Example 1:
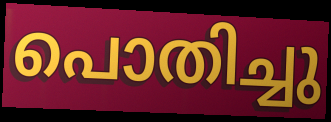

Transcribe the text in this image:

പൊതിച്ചു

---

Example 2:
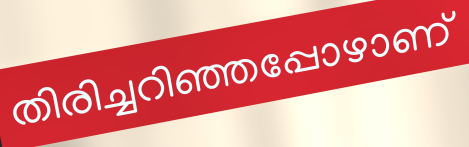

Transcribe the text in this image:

തിരിച്ചറിഞ്ഞപ്പോഴാണ്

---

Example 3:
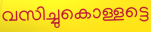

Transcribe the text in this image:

വസിച്ചുകൊള്ളട്ടെ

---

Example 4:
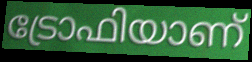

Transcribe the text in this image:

ട്രോഫിയാണ്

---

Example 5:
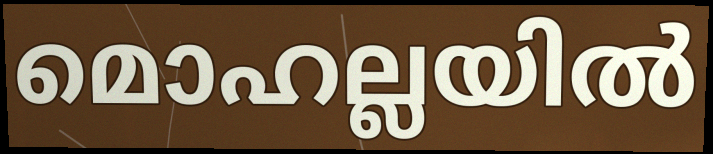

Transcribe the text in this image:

മൊഹല്ലയിൽ